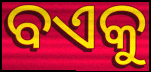
ବଏକୁ